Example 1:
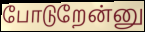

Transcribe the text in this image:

போடுறேன்னு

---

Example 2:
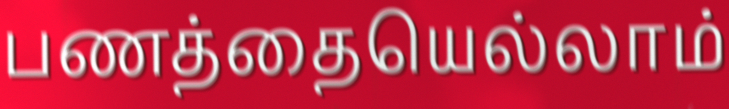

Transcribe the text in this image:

பணத்தையெல்லாம்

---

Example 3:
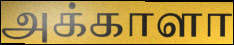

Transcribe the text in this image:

அக்காளா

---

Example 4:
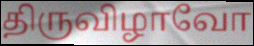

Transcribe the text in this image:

திருவிழாவோ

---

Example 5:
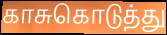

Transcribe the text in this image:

காசுகொடுத்து